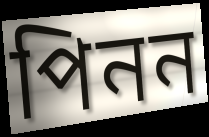
পিনন